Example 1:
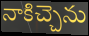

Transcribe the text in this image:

నాకిచ్చెను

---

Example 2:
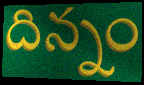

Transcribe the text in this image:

దిన్నం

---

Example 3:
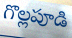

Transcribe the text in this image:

గొల్లపూడి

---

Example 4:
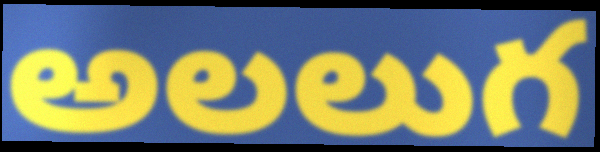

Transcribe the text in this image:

అలలుగ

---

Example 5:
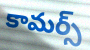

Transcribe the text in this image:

కామర్స్